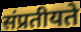
संप्रतीयते